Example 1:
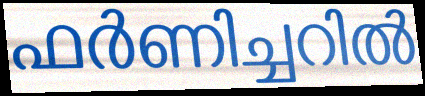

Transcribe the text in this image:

ഫർണിച്ചറിൽ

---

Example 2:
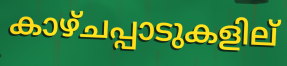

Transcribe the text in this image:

കാഴ്ചപ്പാടുകളില്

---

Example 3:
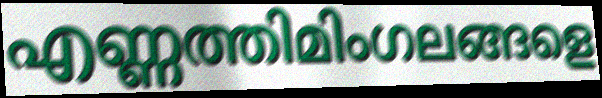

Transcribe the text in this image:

എണ്ണത്തിമിംഗലങ്ങളെ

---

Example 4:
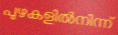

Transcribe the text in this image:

പുഴകളിൽനിന്ന്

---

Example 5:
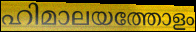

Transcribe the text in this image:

ഹിമാലയത്തോളം